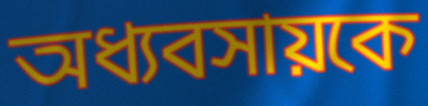
অধ্যবসায়কে